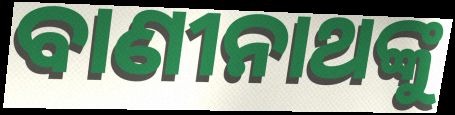
ବାଣୀନାଥଙ୍କୁ